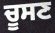
ਚੂਸਣ